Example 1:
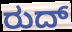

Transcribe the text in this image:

ರುದ್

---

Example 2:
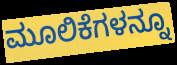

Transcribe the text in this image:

ಮೂಲಿಕೆಗಳನ್ನೂ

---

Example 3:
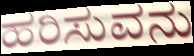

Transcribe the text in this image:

ಹರಿಸುವನು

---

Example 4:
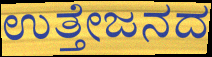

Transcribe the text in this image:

ಉತ್ತೇಜನದ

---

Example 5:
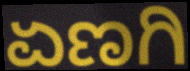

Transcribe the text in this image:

ಏಣಗಿ